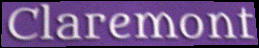
Claremont